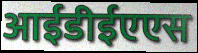
आईडीईएएस